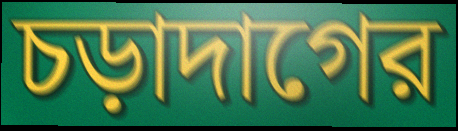
চড়াদাগের